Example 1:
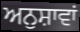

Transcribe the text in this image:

ਅਨੁਸ਼ਾਵਾਂ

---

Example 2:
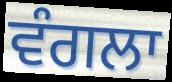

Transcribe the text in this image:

ਵੰਗਲਾ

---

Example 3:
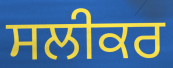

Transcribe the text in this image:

ਸਲੀਕਰ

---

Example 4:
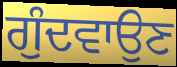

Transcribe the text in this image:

ਗੁੰਦਵਾਉਣ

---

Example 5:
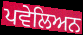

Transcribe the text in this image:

ਪਵੇਲਿਅਨ